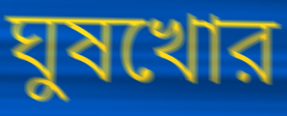
ঘুষখোর